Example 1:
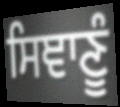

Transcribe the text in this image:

ਸਿਞਾਣੂੰ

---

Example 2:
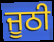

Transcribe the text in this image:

ਜੂਠੀ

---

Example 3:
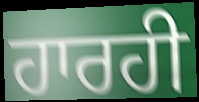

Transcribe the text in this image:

ਹਾਰਹੀ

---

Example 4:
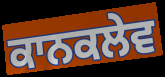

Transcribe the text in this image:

ਕਾਨਕਲੇਵ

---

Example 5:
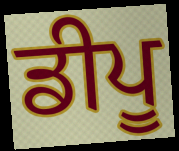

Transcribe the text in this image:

ਡੀਪੂ